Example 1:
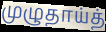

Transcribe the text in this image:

முழுதாய்த்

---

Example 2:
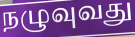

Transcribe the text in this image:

நழுவுவது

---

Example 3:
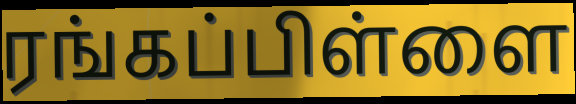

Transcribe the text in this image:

ரங்கப்பிள்ளை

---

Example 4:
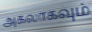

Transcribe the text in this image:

அகலாகவும்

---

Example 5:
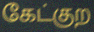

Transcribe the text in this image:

கேட்குற